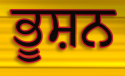
ਭੂਸ਼ਨ